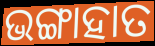
ଭଙ୍ଗାହାତ